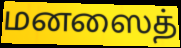
மனஸைத்